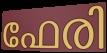
ഫേരി